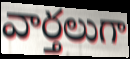
వార్తలుగా